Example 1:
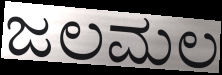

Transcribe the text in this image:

ಜಲಮಲ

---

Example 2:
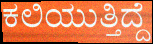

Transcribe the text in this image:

ಕಲಿಯುತ್ತಿದ್ದೆ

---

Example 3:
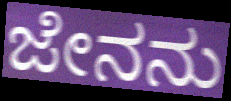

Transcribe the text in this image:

ಜೇನನು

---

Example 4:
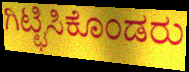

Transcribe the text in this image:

ಗಿಟ್ಟಿಸಿಕೊಂಡರು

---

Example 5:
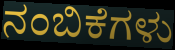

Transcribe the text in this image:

ನಂಬಿಕೆಗಳು